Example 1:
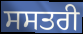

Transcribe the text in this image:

ਸਸਤਰੀ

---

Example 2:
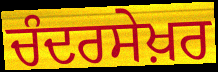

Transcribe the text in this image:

ਚੰਦਰਸੇਖ਼ਰ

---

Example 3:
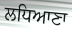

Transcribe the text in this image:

ਲਧਿਆਣਾ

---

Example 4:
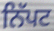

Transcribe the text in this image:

ਨਿੱਪਟ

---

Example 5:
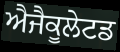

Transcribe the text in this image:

ਐਜੈਕੂਲੇਟਡ